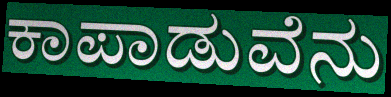
ಕಾಪಾಡುವೆನು